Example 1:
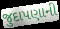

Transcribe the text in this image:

જુદાપણાની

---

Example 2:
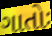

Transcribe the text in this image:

ગાતોઃ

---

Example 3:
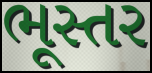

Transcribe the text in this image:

ભૂસ્તર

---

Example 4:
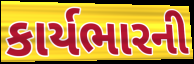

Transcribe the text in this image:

કાર્યભારની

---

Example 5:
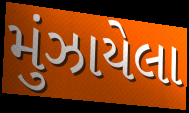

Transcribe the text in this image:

મુંઝાયેલા